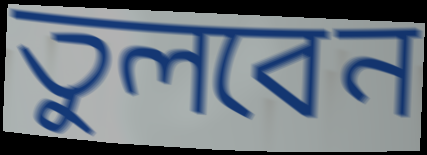
তুলবেন